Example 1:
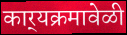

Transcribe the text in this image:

कार्यक्रमावेळी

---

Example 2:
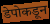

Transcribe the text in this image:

डेपोकडून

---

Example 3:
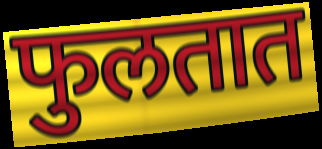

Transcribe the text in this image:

फुलतात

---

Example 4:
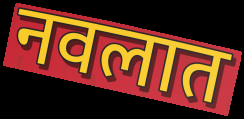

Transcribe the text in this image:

नवलात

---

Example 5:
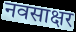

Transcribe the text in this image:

नवसाक्षर